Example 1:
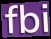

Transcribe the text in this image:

fbi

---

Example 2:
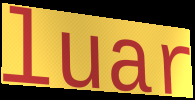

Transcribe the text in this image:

luar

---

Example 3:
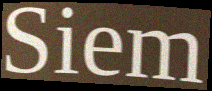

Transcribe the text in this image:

Siem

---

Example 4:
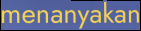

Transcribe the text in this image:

menanyakan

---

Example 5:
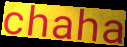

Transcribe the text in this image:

chaha